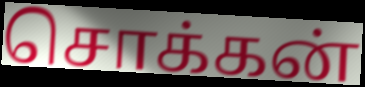
சொக்கன்